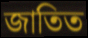
জাতিত